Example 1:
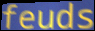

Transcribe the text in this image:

feuds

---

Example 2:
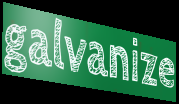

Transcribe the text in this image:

galvanize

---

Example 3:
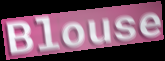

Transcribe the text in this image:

Blouse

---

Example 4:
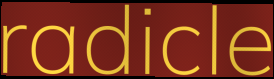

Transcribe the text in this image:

radicle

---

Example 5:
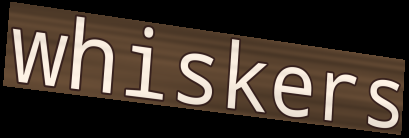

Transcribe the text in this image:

whiskers